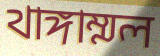
থাঙ্গাম্মল